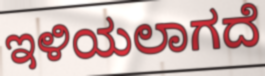
ಇಳಿಯಲಾಗದೆ